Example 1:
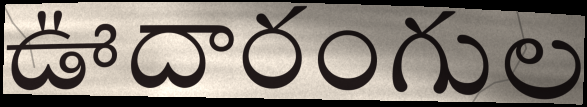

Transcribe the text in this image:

ఊదారంగుల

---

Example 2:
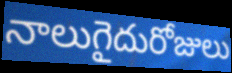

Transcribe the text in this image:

నాలుగైదురోజులు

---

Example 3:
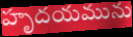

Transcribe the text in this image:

హృదయమును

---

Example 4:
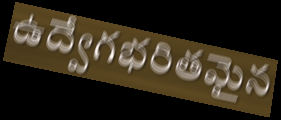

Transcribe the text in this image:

ఉద్వేగభరితమైన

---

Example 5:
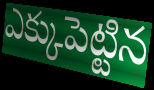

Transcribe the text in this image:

ఎక్కుపెట్టిన